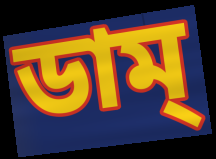
ডাম্